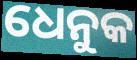
ଧେନୁକ